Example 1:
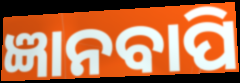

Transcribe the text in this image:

ଜ୍ଞାନବାପି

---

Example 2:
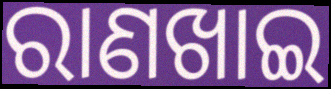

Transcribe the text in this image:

ରାଣଖାଇ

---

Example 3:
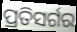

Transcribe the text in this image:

ପ୍ରତିସର୍ଗର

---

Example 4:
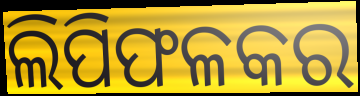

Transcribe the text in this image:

ଲିପିଫଳକର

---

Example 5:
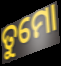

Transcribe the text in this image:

ତୁମୋ